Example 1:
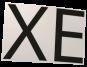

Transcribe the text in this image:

XE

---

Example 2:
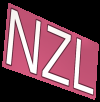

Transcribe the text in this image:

NZL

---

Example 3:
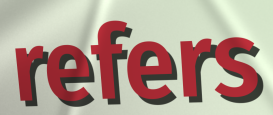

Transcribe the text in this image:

refers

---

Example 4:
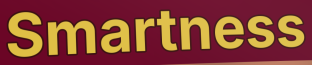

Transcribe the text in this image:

Smartness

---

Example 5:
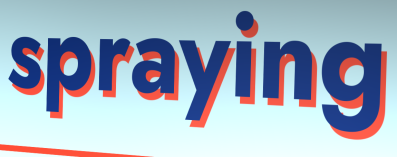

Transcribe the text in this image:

spraying